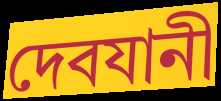
দেবযানী